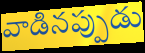
వాడినప్పుడు